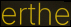
erthe